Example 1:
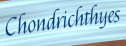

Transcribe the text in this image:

Chondrichthyes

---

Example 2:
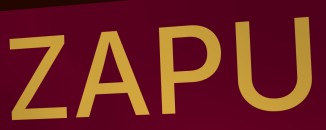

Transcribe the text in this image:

ZAPU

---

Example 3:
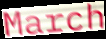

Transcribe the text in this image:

March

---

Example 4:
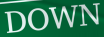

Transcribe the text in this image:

DOWN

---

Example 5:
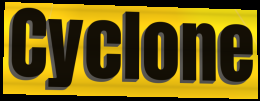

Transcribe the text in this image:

Cyclone